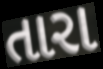
તારા